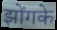
झोंगके